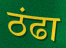
ठंढा